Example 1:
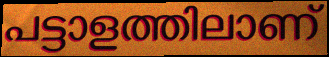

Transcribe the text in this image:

പട്ടാളത്തിലാണ്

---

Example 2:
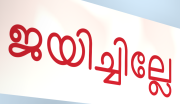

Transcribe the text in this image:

ജയിച്ചില്ലേ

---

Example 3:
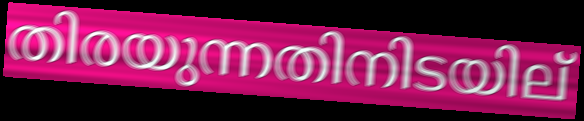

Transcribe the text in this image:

തിരയുന്നതിനിടയില്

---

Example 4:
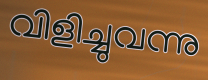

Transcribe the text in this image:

വിളിച്ചുവന്നു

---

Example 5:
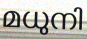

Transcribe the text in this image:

മധുനി